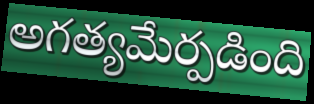
అగత్యమేర్పడింది